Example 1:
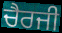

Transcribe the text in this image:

ਚੈਰਜੀ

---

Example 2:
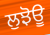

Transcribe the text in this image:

ਲੁਝੋਊ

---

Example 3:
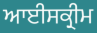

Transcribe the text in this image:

ਆਈਸਕ੍ਰੀਮ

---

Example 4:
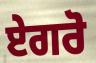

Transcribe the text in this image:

ਏਗਰੋ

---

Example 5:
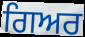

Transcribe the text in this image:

ਗਿਅਰ